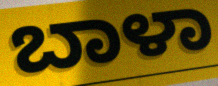
ಬಾಳಾ